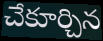
చేకూర్చిన